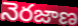
నెరజాణ